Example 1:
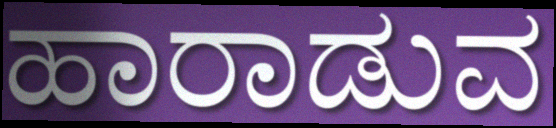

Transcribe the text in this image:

ಹಾರಾಡುವ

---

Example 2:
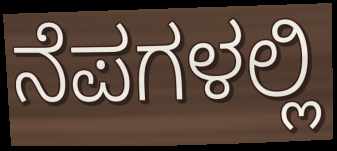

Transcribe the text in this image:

ನೆಪಗಳಲ್ಲಿ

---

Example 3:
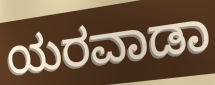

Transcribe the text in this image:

ಯರವಾಡಾ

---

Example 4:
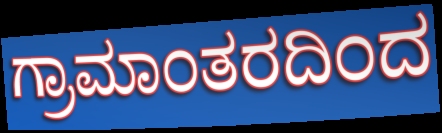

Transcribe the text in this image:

ಗ್ರಾಮಾಂತರದಿಂದ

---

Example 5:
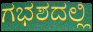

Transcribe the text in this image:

ಗಭಶದಲ್ಲಿ